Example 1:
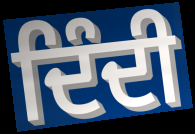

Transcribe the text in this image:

ਦਿੰਦੀ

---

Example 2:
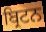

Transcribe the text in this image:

ਬ੍ਰਿਟਨ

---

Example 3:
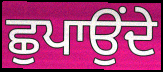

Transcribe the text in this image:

ਛੁਪਾਉਂਦੇ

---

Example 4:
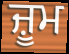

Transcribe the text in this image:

ਜ਼ੂਮ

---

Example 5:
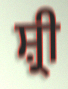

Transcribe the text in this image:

ਸ਼੍ਰੀ